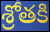
శ్రోతకి